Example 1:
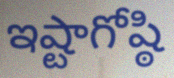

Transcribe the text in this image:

ఇష్టాగోష్ఠి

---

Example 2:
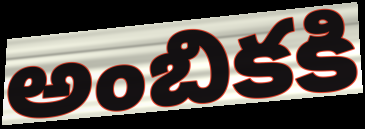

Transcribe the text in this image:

అంబికకి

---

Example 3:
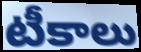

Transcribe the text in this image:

టీకాలు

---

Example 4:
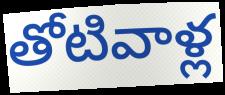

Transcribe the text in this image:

తోటివాళ్ల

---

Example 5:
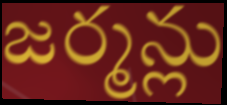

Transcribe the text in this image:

జర్మన్లు